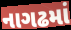
નાગઢમાં